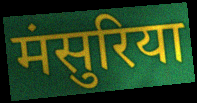
मंसुरिया